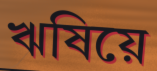
ঋষিয়ে